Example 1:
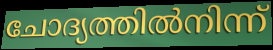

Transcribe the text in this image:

ചോദ്യത്തിൽനിന്ന്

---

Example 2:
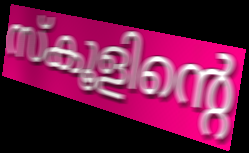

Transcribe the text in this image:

സ്കൂളിന്റെ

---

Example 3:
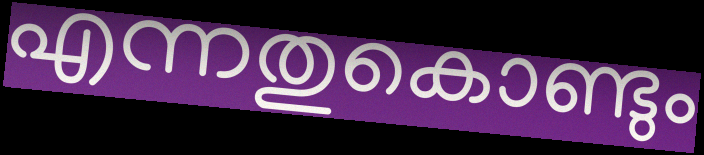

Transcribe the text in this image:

എന്നതുകൊണ്ടും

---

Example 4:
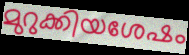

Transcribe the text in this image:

മുറുക്കിയശേഷം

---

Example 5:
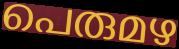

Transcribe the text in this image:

പെരുമഴ